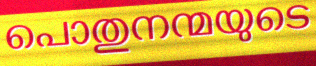
പൊതുനന്മയുടെ